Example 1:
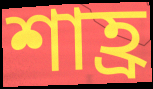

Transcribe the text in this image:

শাহ্র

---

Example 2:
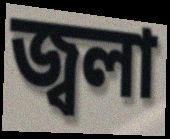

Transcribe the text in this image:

জ্বলা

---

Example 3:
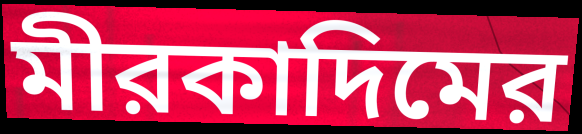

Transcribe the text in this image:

মীরকাদিমের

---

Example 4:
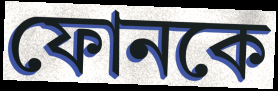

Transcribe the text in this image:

ফোনকে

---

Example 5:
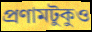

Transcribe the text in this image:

প্রণামটুকুও